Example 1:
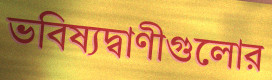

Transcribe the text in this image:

ভবিষ্যদ্বাণীগুলোর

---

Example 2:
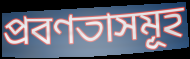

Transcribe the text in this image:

প্রবণতাসমূহ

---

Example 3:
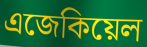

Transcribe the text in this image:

এজেকিয়েল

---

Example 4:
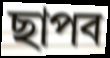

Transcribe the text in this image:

ছাপব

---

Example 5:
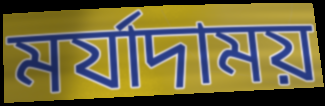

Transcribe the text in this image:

মর্যাদাময়